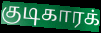
குடிகாரக்